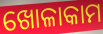
ଖୋଳାକାମ